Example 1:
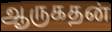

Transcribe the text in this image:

ஆருகதன்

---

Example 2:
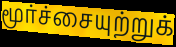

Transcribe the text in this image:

மூர்ச்சையுற்றுக்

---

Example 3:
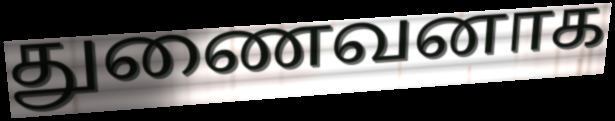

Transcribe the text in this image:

துணைவனாக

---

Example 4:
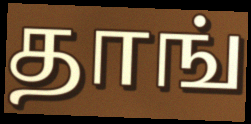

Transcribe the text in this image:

தாங்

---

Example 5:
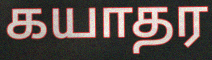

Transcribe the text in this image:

கயாதர